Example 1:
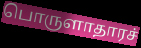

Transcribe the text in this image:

பொருளாதாரச்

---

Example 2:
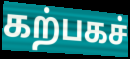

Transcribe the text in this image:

கற்பகச்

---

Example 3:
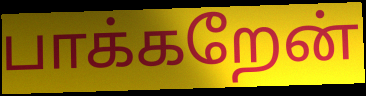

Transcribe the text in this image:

பாக்கறேன்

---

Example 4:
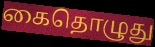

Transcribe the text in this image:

கைதொழுது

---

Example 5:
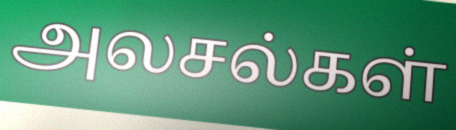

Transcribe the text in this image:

அலசல்கள்